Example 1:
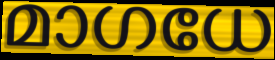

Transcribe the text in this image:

മാഗധേ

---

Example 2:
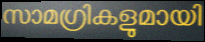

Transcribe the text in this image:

സാമഗ്രികളുമായി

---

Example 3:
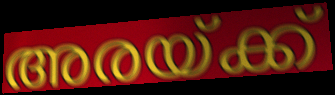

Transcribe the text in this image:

അരയ്‌ക്ക്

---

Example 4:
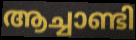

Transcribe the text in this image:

ആച്ചാണ്ടി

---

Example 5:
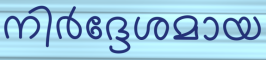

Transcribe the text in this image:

നിർദ്ദേശമായ